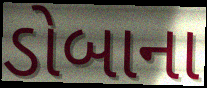
ડોબાના